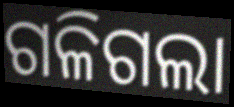
ଗଳିଗଲା